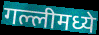
गल्लीमध्ये